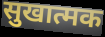
सुखात्मक